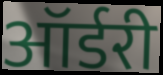
ऑर्डरी